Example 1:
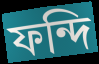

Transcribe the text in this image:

ফন্দি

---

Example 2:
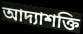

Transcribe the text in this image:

আদ্যাশক্তি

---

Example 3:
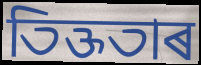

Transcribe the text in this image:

তিক্ততাৰ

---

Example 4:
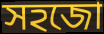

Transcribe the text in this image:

সহজো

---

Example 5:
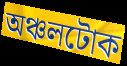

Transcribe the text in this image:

অঞ্চলটোক